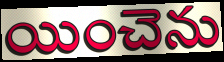
యించెను